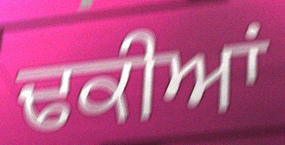
ਢਕੀਆਂ